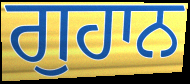
ਗੁਹਾਨ